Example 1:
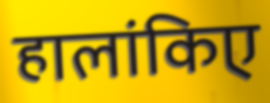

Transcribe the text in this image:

हालांकिए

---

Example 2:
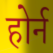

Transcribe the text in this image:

होर्न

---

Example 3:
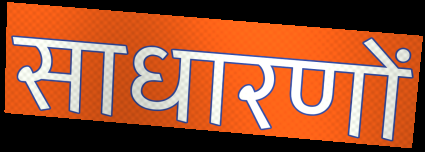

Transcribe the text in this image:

साधारणों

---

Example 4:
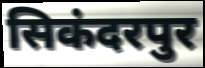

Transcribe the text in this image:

सिकंदरपुर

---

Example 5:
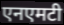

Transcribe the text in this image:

एनएमटी